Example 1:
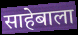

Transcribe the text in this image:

साहेबाला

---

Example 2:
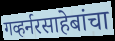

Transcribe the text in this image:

गव्हर्नरसाहेबांचा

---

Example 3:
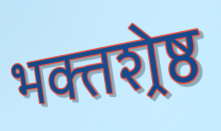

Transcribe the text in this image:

भक्तश्रेष्ठ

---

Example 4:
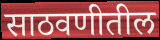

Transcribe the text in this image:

साठवणीतील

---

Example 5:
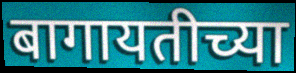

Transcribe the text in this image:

बागायतीच्या